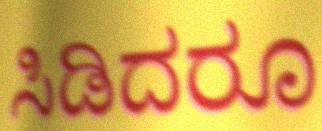
ಸಿಡಿದರೂ